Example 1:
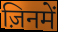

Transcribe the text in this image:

ज़िनमें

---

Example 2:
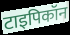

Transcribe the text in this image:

टाइपिकॉन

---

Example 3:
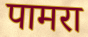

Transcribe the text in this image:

पामरा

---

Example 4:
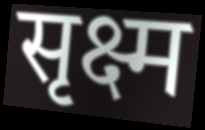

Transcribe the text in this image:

सृक्ष्म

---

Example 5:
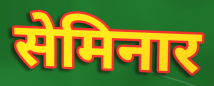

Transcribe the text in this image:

सेमिनार